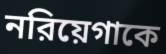
নরিয়েগাকে